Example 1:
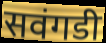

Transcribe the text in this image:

सवंगडी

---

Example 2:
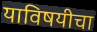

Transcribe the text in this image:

याविषयीचा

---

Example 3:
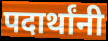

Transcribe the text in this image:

पदार्थांनी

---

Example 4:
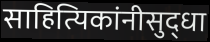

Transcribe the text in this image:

साहित्यिकांनीसुद्धा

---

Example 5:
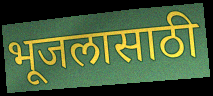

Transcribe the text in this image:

भूजलासाठी